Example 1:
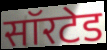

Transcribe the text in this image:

सॉरटेड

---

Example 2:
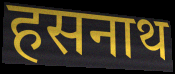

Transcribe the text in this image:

हसनाथ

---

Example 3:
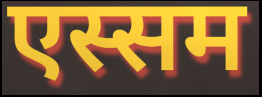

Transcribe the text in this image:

एस्सम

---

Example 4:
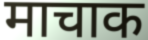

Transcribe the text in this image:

माचाक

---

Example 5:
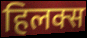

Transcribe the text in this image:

हिलक्स